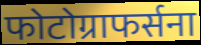
फोटोग्राफर्सना